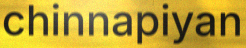
chinnapiyan